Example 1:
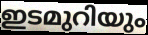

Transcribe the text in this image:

ഇടമുറിയും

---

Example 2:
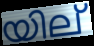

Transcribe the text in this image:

യില്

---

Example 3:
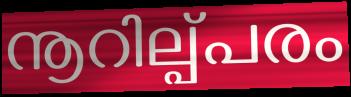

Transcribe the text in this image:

നൂറില്പ്പരം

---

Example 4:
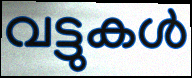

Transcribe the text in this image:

വട്ടുകൾ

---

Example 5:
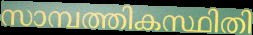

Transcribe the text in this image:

സാമ്പത്തികസ്ഥിതി